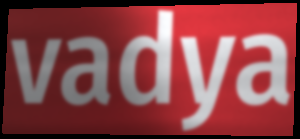
vadya